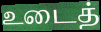
உடைத்